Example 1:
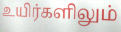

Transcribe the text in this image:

உயிர்களிலும்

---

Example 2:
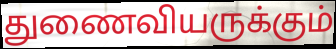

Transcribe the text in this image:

துணைவியருக்கும்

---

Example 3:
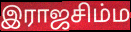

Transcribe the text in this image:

இராஜசிம்ம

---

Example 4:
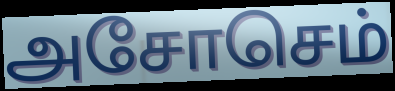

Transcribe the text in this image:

அசோசெம்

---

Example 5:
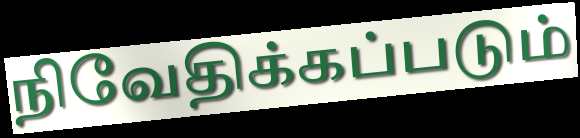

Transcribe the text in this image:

நிவேதிக்கப்படும்